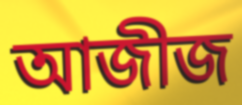
আজীজ